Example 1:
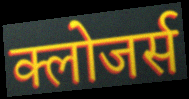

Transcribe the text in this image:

क्लोजर्स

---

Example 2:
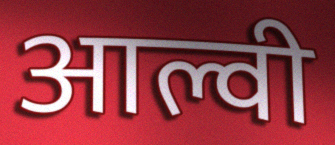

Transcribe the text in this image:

आल्वी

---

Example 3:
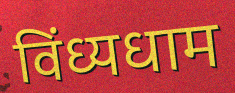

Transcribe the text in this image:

विंध्यधाम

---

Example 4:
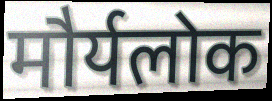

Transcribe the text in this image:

मौर्यलोक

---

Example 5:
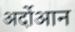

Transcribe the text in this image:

अर्दोआन